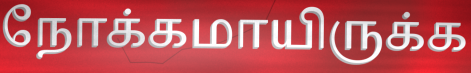
நோக்கமாயிருக்க